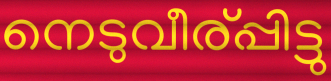
നെടുവീര്പ്പിട്ടു